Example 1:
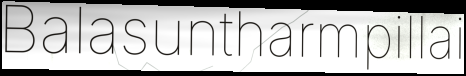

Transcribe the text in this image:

Balasuntharmpillai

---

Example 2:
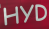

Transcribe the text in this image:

HYD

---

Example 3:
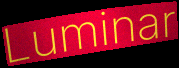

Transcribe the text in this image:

Luminar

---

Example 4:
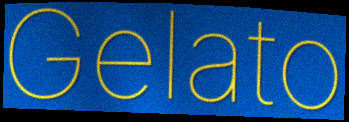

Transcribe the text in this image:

Gelato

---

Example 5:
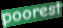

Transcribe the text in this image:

poorest